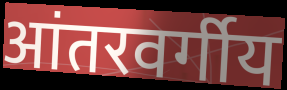
आंतरवर्गीय